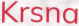
Krsna